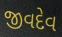
જીવદેવ